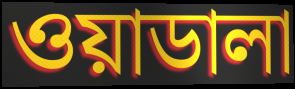
ওয়াডালা